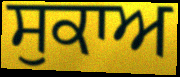
ਸੁਕਾਅ